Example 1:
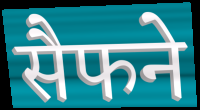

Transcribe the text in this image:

सैफने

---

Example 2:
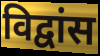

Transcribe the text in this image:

विद्वांस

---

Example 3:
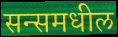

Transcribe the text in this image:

सन्समधील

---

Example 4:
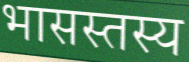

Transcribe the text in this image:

भासस्तस्य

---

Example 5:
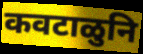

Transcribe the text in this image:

कवटाळुनि